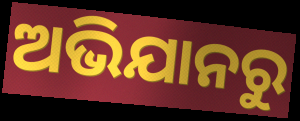
ଅଭିଯାନରୁ